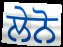
ਲੇਨੋ